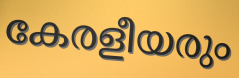
കേരളീയരും